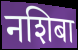
नशिबा